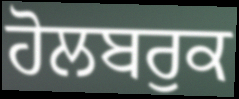
ਹੋਲਬਰੁਕ